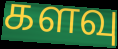
களவு